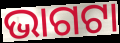
ଭାଗଟା